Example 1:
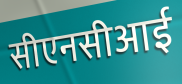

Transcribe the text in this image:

सीएनसीआई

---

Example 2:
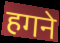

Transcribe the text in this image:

हगने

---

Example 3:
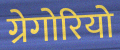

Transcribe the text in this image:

ग्रेगोरियो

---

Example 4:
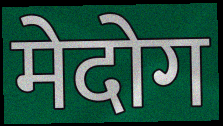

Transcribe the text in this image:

मेदोग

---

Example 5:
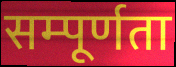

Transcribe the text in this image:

सम्पूर्णता